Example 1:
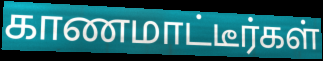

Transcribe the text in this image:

காணமாட்டீர்கள்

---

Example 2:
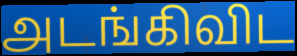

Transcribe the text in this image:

அடங்கிவிட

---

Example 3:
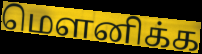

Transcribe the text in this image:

மெளனிக்க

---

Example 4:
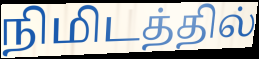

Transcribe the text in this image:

நிமிடத்தில்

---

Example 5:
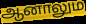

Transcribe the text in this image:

ஆனாலும